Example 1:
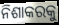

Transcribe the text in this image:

ନିଶାକରକୁ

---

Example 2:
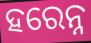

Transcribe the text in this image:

ହରେନ୍ନ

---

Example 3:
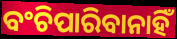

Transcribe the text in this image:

ବଂଚିପାରିବାନାହିଁ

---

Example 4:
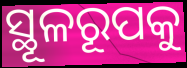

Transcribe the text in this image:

ସ୍ଥୂଳରୂପକୁ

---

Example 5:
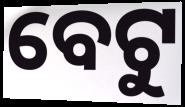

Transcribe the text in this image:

ବେଟୁ